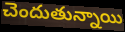
చెందుతున్నాయి